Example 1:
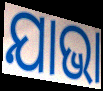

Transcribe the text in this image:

ଯାଭା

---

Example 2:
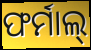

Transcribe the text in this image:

ଫର୍ମାଲ୍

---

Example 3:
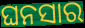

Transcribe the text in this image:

ଘନସାର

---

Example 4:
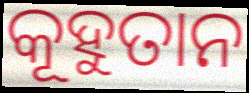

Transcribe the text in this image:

କୂହୁତାନ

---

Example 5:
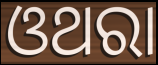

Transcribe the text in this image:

ଓଥରା